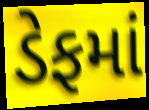
ડેફમાં